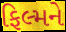
ફિલ્મને